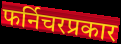
फर्निचरप्रकार